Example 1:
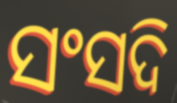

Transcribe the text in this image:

ସଂସଦି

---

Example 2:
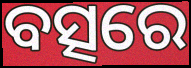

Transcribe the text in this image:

ବତ୍ସରେ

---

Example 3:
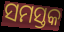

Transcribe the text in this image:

ସମସ୍ତକ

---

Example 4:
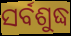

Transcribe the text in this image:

ସର୍ବଶୁଦ୍ଧ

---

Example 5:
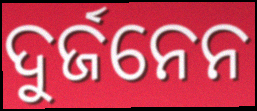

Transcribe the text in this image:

ଦୁର୍ଜନେନ